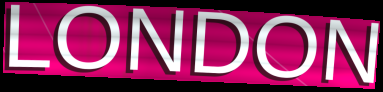
LONDON